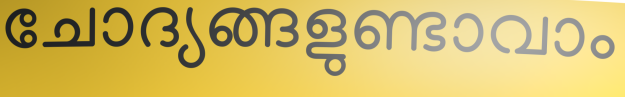
ചോദ്യങ്ങളുണ്ടാവാം